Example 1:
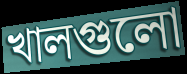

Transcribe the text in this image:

খালগুলো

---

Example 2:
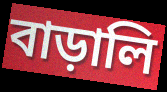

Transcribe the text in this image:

বাড়ালি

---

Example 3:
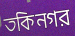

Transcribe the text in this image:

তকিনগর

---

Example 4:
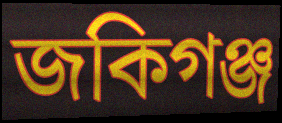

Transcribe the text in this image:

জকিগঞ্জ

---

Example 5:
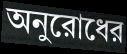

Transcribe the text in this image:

অনুরোধের